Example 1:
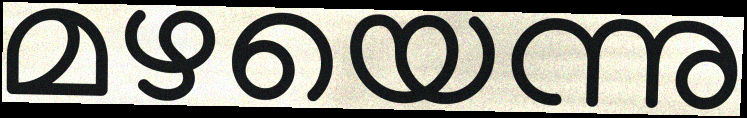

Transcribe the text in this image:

മഴയെന്നു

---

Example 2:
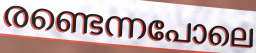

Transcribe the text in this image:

രണ്ടെന്നപോലെ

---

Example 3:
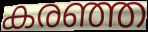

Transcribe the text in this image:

കരഞ്ഞ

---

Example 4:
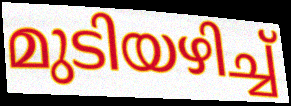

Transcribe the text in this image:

മുടിയഴിച്ച്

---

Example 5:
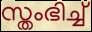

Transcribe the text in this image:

സ്തംഭിച്ച്